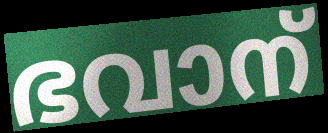
ഭവാന്